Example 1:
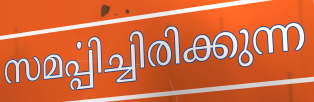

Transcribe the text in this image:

സമൎപ്പിച്ചിരിക്കുന്ന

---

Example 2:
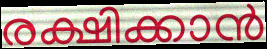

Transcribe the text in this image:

രക്ഷിക്കാൻ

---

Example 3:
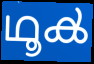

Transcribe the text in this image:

ഥൂൿ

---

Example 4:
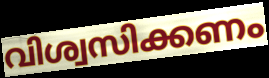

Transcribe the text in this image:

വിശ്വസിക്കണം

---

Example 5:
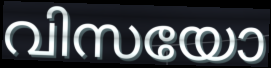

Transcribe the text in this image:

വിസയോ